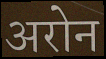
अरोन